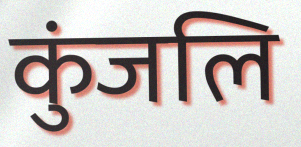
कुंजलि